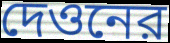
দেওনের